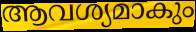
ആവശ്യമാകും